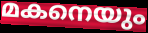
മകനെയും